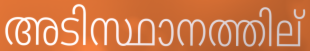
അടിസ്ഥാനത്തില്